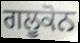
ਗਲੂਕੋਨ